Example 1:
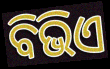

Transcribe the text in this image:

ବିଭିଏ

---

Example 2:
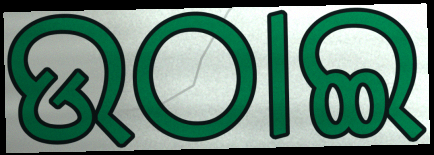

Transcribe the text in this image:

ଉଠାଇ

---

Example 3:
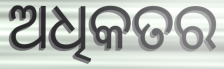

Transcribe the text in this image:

ଅଧିକତର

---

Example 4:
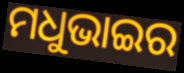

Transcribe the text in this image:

ମଧୁଭାଇର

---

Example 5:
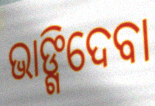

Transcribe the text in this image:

ଭାଙ୍ଗିଦେବା